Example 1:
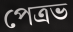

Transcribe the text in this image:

পেত্রভ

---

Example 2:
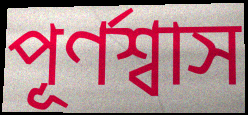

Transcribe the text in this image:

পূর্ণশ্বাস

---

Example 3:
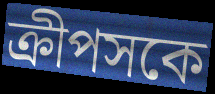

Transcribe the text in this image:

ক্রীপসকে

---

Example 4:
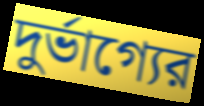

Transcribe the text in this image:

দুর্ভাগ্যের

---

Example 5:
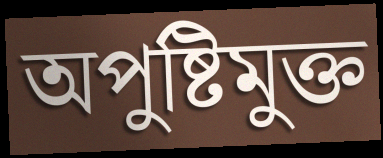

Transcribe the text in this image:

অপুষ্টিমুক্ত